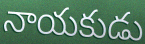
నాయకుడు